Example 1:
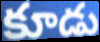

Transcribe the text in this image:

కూడు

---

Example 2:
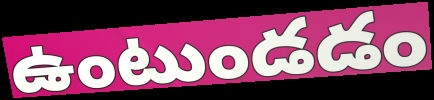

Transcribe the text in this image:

ఉంటుండడం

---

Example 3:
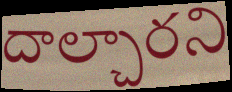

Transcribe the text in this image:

దాల్చారని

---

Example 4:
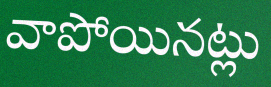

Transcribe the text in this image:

వాపోయినట్లు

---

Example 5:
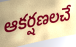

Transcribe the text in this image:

ఆకర్షణలచే